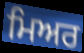
ਮਿਅਰ